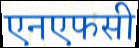
एनएफसी